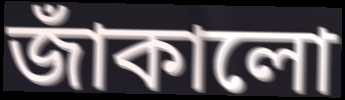
জাঁকালো